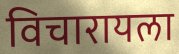
विचारायला